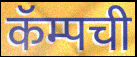
कॅम्पची